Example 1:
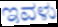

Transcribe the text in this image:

ಇವಳು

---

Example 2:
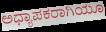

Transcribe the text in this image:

ಅಧ್ಯಾಪಕರಾಗಿಯೂ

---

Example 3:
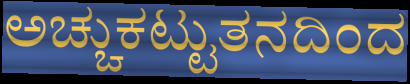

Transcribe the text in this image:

ಅಚ್ಚುಕಟ್ಟುತನದಿಂದ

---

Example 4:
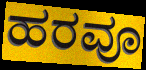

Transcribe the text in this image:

ಹರವೂ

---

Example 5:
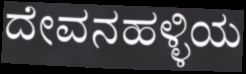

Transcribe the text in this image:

ದೇವನಹಳ್ಳಿಯ